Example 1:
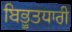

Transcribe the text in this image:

ਬਿਭੂਤਧਾਰੀ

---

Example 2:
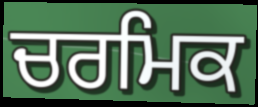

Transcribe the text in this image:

ਚਰਮਿਕ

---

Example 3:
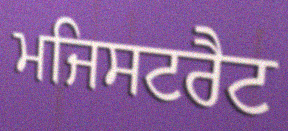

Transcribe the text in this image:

ਮਜਿਸਟਰੈਟ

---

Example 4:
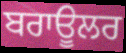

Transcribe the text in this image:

ਬਰਾਊਲਰ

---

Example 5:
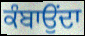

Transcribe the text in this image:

ਕੰਬਾਉਂਦਾ